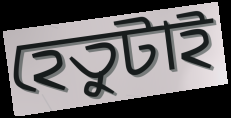
হেতুটাই